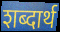
शब्दार्थ